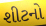
શીટનો